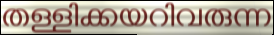
തള്ളിക്കയറിവരുന്ന